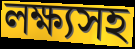
লক্ষ্যসহ